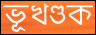
ভূখণ্ডক